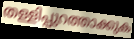
തള്ളിപ്പുറത്താക്കുക